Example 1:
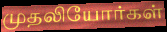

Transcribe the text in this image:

முதலியோர்கள்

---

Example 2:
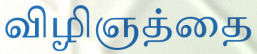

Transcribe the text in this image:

விழிஞத்தை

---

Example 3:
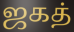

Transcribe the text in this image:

ஜகத்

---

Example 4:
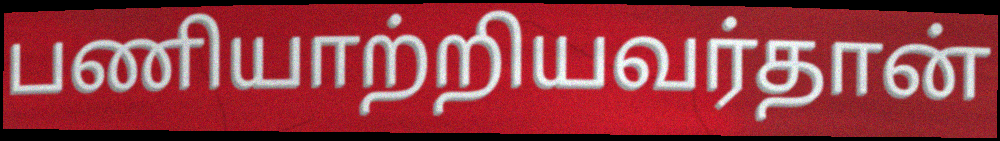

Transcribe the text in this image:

பணியாற்றியவர்தான்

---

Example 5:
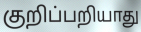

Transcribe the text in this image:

குறிப்பறியாது